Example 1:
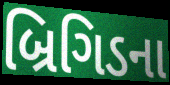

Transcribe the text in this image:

બ્રિગિડના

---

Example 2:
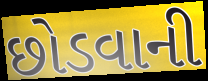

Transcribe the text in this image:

છોડવાની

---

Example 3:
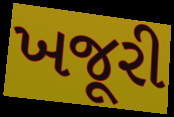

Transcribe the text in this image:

ખજૂરી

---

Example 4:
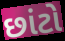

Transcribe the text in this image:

છાંટો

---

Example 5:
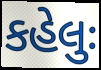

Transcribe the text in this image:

કહેલુઃ